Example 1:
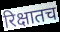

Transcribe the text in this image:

रिक्षातच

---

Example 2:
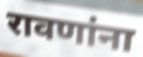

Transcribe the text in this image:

रावणांना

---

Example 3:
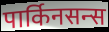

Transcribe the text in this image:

पार्किनसन्स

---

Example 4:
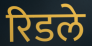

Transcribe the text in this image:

रिडले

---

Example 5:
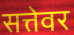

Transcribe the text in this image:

सत्तेवर